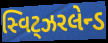
સ્વિટ્ઝરલેન્ડ